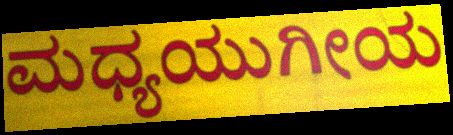
ಮಧ್ಯಯುಗೀಯ